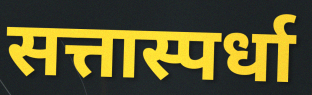
सत्तास्पर्धा